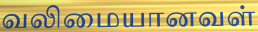
வலிமையானவள்